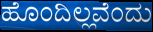
ಹೊಂದಿಲ್ಲವೆಂದು